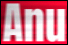
Anu